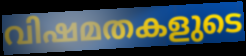
വിഷമതകളുടെ